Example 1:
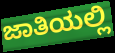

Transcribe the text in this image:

ಜಾತಿಯಲ್ಲಿ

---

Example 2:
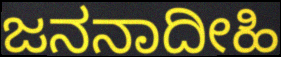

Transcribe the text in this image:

ಜನನಾದೀಹಿ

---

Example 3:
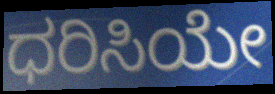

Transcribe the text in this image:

ಧರಿಸಿಯೇ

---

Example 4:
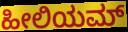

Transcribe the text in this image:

ಹೀಲಿಯಮ್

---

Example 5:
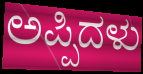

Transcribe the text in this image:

ಅಪ್ಪಿದಳು